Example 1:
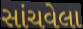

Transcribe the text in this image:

સાંચવેલા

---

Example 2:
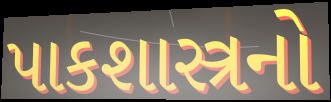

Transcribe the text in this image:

પાકશાસ્ત્રનો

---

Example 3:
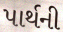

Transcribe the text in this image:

પાર્થની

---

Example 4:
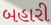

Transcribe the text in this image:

બહારી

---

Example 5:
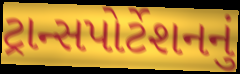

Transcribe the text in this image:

ટ્રાન્સપોર્ટેશનનું